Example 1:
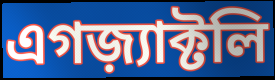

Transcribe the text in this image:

এগজ়্যাক্টলি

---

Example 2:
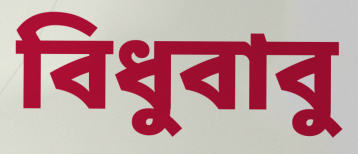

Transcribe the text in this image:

বিধুবাবু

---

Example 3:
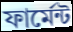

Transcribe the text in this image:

ফার্মেন্ট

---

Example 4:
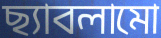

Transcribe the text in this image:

ছ্যাবলামো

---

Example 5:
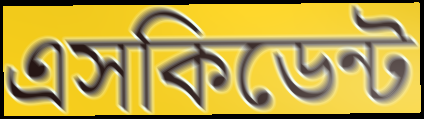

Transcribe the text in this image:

এসকিডেন্ট